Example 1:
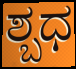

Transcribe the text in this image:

ಶ್ಬಧ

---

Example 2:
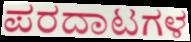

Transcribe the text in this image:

ಪರದಾಟಗಳ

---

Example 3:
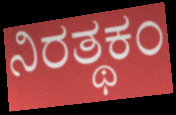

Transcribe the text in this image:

ನಿರತ್ಥಕಂ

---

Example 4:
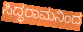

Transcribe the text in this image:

ಸಿದ್ಧರಾಮನಿಂದ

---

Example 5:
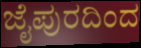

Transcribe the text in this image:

ಜೈಪುರದಿಂದ